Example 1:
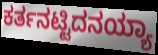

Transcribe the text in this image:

ಕರ್ತನಟ್ಟಿದನಯ್ಯಾ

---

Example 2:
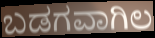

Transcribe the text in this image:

ಬಡಗವಾಗಿಲ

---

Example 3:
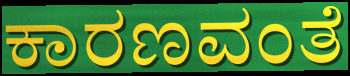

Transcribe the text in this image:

ಕಾರಣವಂತೆ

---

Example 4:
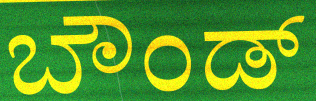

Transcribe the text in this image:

ಬೌಂಡ್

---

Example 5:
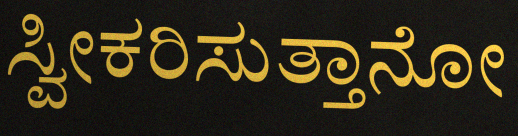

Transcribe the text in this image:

ಸ್ವೀಕರಿಸುತ್ತಾನೋ